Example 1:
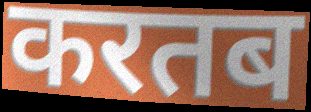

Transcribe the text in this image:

करतब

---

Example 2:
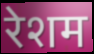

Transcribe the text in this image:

रेशम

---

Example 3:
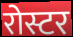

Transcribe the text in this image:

रोस्टर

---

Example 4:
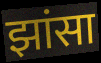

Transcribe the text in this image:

झांसा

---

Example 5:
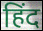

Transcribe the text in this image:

हिंद